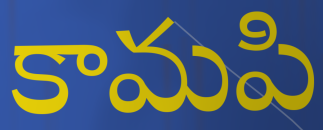
కామపి